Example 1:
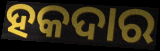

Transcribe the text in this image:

ହକଦାର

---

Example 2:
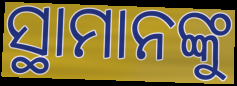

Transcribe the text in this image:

ସ୍ଥାମାନଙ୍କୁ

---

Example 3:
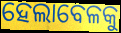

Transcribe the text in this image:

ହେଲାବେଳକୁ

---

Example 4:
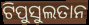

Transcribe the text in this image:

ଟିପୁସୁଲତାନ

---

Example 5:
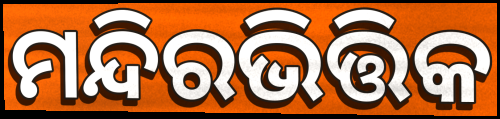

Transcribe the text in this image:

ମନ୍ଦିରଭିତ୍ତିକ